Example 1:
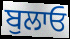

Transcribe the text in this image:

ਬੁਲਾਓ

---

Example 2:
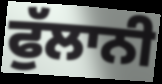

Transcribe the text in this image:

ਫੁੱਲਾਨੀ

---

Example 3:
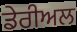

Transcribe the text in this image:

ਡੇਰੀਅਲ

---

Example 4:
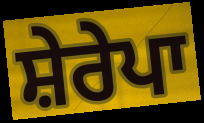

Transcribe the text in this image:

ਸ਼ੇਰੇਪਾ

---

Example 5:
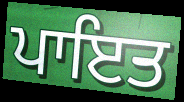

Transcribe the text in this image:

ਪਾਇਤ